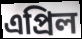
এপ্রিল